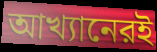
আখ্যানেরই